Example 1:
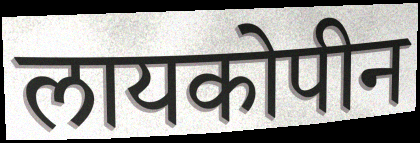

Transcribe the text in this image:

लायकोपीन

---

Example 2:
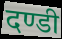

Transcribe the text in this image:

दण्डी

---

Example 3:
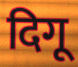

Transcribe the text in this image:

दिगू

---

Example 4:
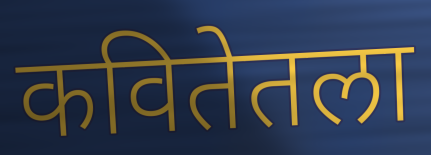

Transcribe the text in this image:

कवितेतला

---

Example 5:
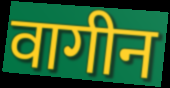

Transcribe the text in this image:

वागीन